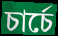
চার্চে